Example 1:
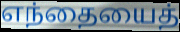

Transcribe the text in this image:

எந்தையைத்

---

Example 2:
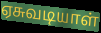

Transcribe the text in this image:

ஏசுவடியாள்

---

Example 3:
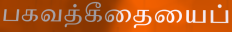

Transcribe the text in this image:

பகவத்கீதையைப்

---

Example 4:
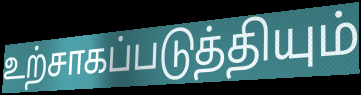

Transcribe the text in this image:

உற்சாகப்படுத்தியும்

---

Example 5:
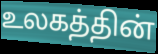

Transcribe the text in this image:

உலகத்தின்